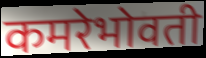
कमरेभोवती